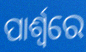
ପାର୍ଶ୍ୱରେ